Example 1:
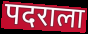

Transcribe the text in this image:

पदराला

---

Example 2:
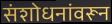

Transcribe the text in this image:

संशोधनांवरून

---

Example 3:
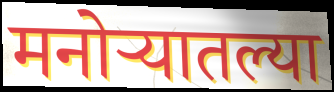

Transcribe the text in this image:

मनोर्‍यातल्या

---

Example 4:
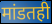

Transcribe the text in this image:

मांडतही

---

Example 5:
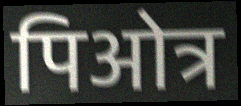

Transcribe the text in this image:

पिओत्र